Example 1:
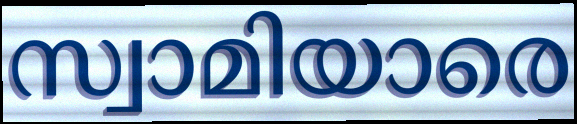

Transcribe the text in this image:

സ്വാമിയാരെ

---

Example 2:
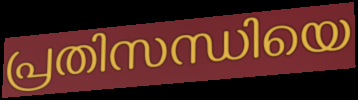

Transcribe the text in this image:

പ്രതിസന്ധിയെ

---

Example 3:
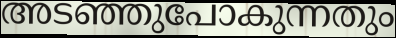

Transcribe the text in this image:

അടഞ്ഞുപോകുന്നതും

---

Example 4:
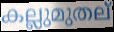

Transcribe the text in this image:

കല്ലുമുതല്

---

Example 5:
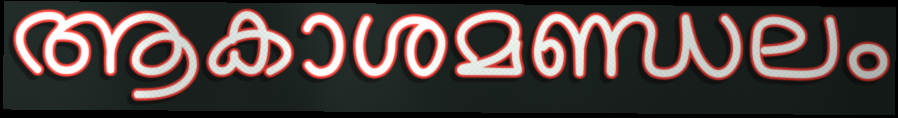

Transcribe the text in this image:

ആകാശമണ്ഡലം